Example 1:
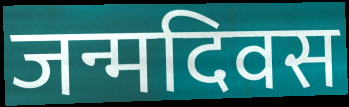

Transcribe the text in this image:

जन्मदिवस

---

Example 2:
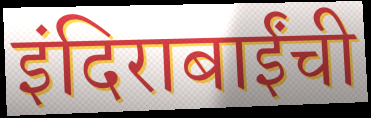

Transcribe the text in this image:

इंदिराबाईंची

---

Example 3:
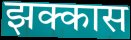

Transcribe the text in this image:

झक्कास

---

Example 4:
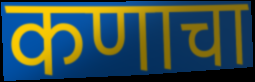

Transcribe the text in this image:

कणाचा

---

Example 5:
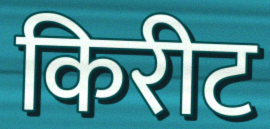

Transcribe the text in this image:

किरीट